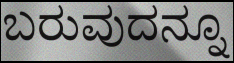
ಬರುವುದನ್ನೂ